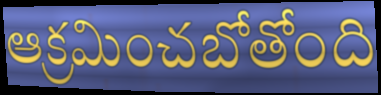
ఆక్రమించబోతోంది